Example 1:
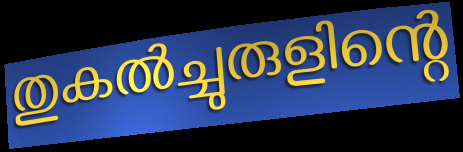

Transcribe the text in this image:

തുകൽച്ചുരുളിന്റെ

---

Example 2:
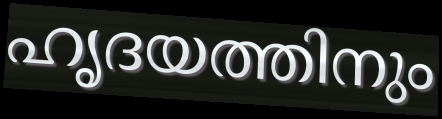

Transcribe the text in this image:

ഹൃദയത്തിനും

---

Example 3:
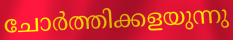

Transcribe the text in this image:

ചോർത്തിക്കളയുന്നു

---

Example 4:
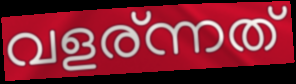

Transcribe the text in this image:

വളര്ന്നത്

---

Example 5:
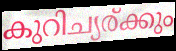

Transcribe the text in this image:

കുറിച്യര്ക്കും